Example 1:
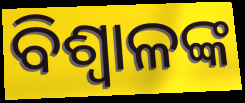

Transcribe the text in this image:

ବିଶ୍ୱାଳଙ୍କ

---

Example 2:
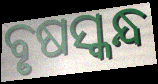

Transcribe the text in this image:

ବୃଷସ୍କନ୍ଧ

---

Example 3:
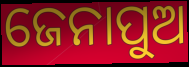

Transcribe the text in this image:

ଜେନାପୁଅ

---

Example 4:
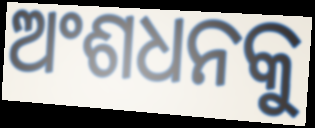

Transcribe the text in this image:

ଅଂଶଧନକୁ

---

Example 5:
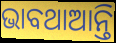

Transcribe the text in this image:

ଭାବଥାଆନ୍ତି